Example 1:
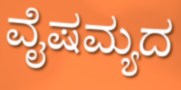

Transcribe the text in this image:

ವೈಷಮ್ಯದ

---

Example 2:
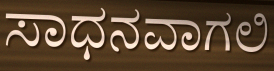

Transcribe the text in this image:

ಸಾಧನವಾಗಲಿ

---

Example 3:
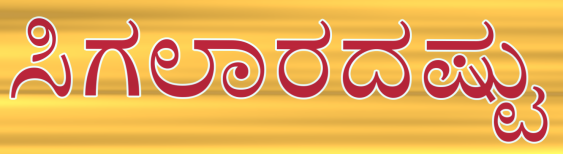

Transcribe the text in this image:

ಸಿಗಲಾರದಷ್ಟು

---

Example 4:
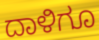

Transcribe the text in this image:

ದಾಳಿಗೂ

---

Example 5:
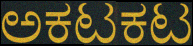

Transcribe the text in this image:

ಅಕಟಕಟ